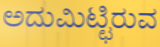
ಅದುಮಿಟ್ಟಿರುವ